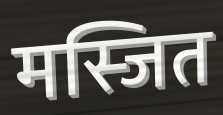
मस्जित